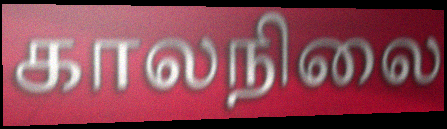
காலநிலை